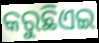
କରୁଛିଏଇ